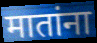
मातांना